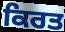
ਕਿਰਤ